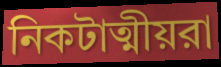
নিকটাত্মীয়রা